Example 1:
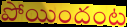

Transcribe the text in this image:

పోయిందంట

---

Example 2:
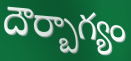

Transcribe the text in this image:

దౌర్బాగ్యం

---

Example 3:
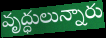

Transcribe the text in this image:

వృద్ధులున్నారు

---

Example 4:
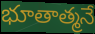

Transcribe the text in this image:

భూతాత్మనే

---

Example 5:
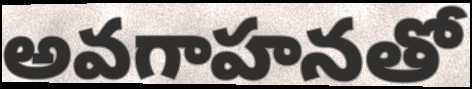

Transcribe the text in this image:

అవగాహనతో